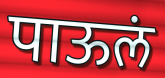
पाऊलं